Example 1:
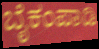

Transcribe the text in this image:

ಬೈಕಂಪಾಡಿ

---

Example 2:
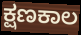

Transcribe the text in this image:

ಕ್ಷಣಕಾಲ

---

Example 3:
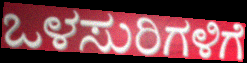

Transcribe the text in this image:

ಒಳಸುರಿಗಳಿಗೆ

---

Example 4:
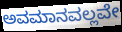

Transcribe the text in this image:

ಅವಮಾನವಲ್ಲವೇ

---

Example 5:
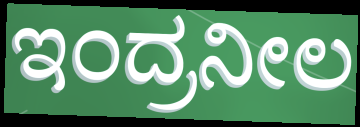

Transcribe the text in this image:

ಇಂದ್ರನೀಲ